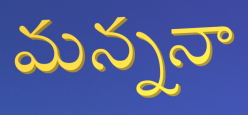
మన్ననా